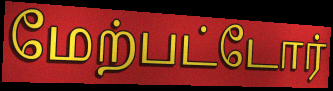
மேற்பட்டோர்